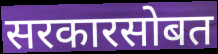
सरकारसोबत